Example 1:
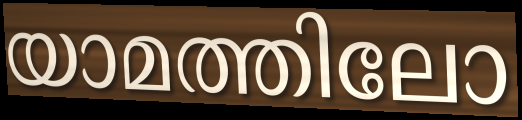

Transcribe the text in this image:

യാമത്തിലോ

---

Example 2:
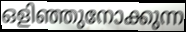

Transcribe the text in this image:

ഒളിഞ്ഞുനോക്കുന്ന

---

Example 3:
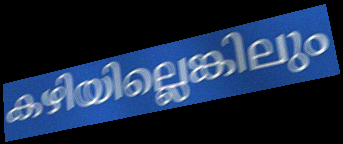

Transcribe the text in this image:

കഴിയില്ലെങ്കിലും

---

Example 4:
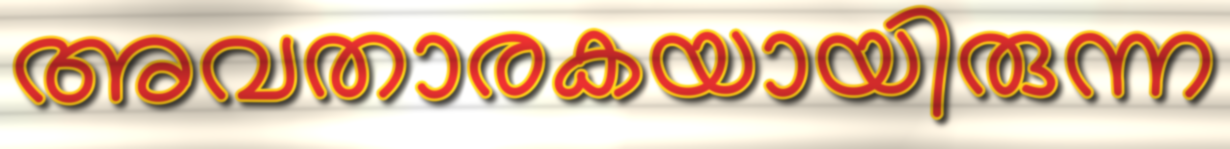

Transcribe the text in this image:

അവതാരകയായിരുന്ന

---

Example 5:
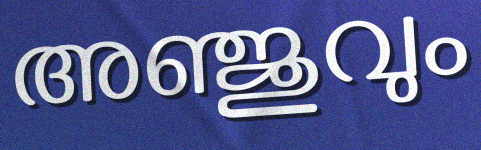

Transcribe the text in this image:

അഞ്ജുവും